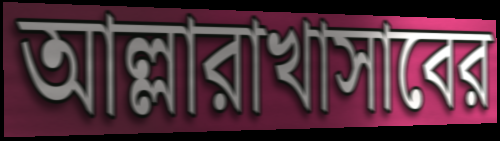
আল্লারাখাসাবের